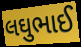
લઘુભાઈ